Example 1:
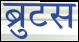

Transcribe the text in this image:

ब्रुटस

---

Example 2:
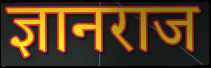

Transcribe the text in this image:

ज्ञानराज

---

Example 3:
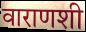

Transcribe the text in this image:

वाराणशी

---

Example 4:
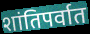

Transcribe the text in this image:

शांतिपर्वात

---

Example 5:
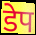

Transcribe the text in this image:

डेप